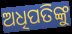
ଅଧିପତିଙ୍କୁ